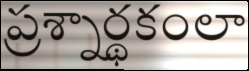
ప్రశ్నార్థకంలా